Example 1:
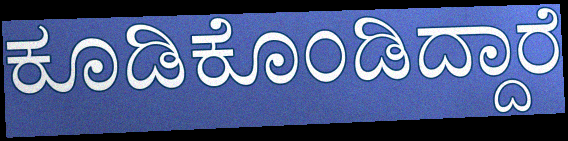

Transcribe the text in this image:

ಕೂಡಿಕೊಂಡಿದ್ದಾರೆ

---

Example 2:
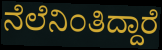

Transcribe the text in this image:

ನೆಲೆನಿಂತಿದ್ದಾರೆ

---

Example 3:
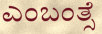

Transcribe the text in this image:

ಎಂಬಂತ್ಸೆ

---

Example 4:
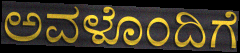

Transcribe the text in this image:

ಅವಳೊಂದಿಗೆ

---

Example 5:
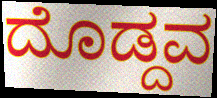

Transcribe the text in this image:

ದೊಡ್ದವ